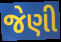
જેણી